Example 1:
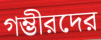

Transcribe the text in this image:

গম্ভীরদের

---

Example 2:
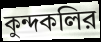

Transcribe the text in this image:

কুন্দকলির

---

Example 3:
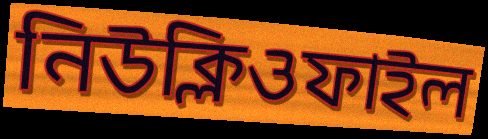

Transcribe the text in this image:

নিউক্লিওফাইল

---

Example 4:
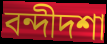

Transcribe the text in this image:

বন্দীদশা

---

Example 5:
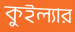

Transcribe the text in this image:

কুইল্যার